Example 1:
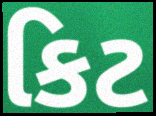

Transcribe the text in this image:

કિટ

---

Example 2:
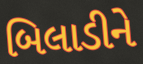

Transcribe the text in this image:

બિલાડીને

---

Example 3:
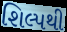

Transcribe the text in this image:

શિલ્પથી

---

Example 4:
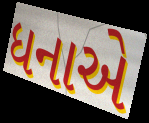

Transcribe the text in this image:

ધનાએ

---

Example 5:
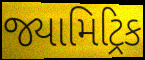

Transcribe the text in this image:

જ્યામિટ્રિક